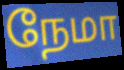
நேமா